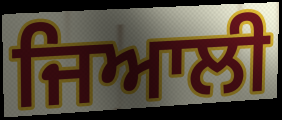
ਜਿਆਲੀ